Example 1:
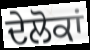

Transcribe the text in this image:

ਦੇਲੋਕਾਂ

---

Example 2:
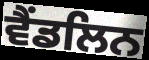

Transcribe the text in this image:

ਵੈਂਡਲਿਨ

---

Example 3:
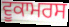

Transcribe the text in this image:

ਵੂਕਾਮਰਸ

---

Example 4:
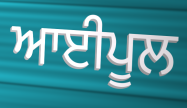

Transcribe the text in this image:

ਆਈਪੂਲ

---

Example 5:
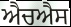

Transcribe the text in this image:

ਐਚਐਸ